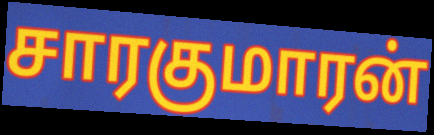
சாரகுமாரன்